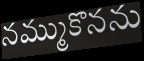
నమ్ముకొనను